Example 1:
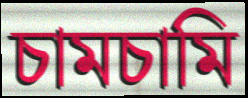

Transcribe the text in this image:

চামচামি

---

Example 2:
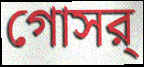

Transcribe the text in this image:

গোসর্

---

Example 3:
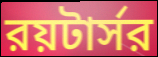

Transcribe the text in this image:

রয়টার্সর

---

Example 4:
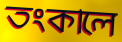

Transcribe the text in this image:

তংকালে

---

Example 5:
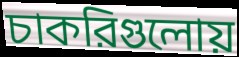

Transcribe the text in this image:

চাকরিগুলোয়